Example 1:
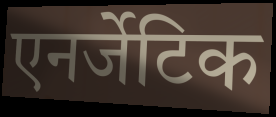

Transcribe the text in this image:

एनर्जेटिक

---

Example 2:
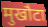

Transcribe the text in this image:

मुखौटा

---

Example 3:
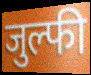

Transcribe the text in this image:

जुल्फी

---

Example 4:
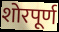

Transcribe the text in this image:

शोरपूर्ण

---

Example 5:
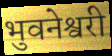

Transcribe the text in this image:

भुवनेश्वरी